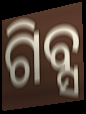
ଗିବ୍ସ